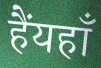
हैंयहाँ